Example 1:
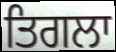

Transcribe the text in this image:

ਤਿਗਲਾ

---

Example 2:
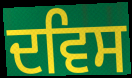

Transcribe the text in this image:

ਦਵਿਸ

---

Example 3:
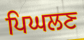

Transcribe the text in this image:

ਪਿਘਲਣ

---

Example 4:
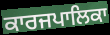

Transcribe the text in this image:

ਕਾਰਜਪਾਲਿਕਾ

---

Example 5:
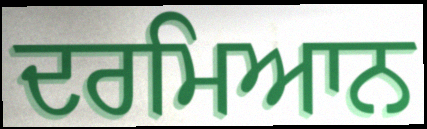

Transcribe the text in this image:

ਦਰਮਿਆਨ